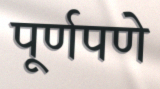
पूर्णपणे